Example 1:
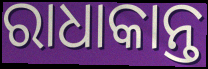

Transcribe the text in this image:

ରାଧାକାନ୍ତ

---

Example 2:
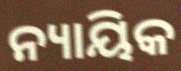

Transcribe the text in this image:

ନ୍ୟାୟିକ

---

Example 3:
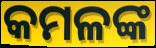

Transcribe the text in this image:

କମଳଙ୍କ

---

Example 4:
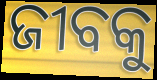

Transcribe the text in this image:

ଜୀବକୁ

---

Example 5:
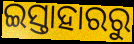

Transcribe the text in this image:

ଇସ୍ତାହାରରୁ